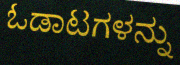
ಓಡಾಟಗಳನ್ನು